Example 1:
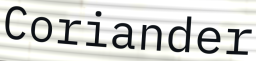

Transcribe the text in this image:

Coriander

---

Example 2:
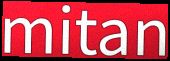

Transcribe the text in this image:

mitan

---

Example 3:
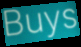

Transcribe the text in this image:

Buys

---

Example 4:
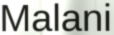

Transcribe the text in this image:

Malani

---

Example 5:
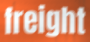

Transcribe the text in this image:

freight